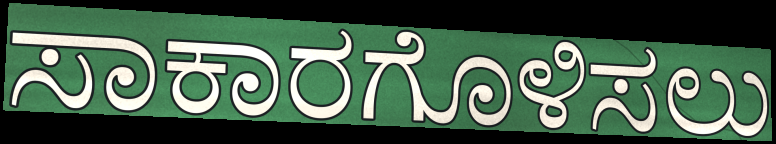
ಸಾಕಾರಗೊಳಿಸಲು